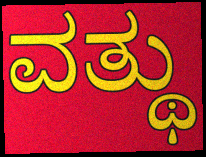
ವತ್ಥು